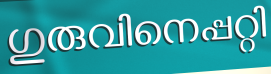
ഗുരുവിനെപ്പറ്റി